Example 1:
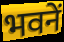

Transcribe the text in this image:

भवनें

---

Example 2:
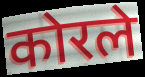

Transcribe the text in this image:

कोरले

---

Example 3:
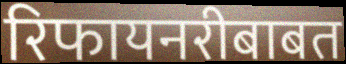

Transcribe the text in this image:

रिफायनरीबाबत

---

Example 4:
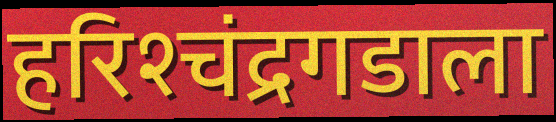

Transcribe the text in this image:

हरिश्चंद्रगडाला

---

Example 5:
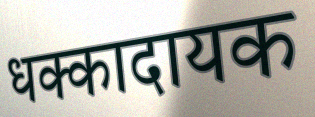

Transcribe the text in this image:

धक्‍कादायक